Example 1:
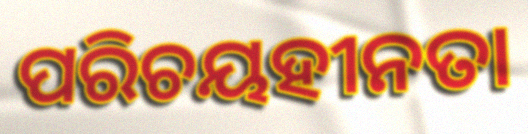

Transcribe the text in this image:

ପରିଚୟହୀନତା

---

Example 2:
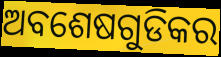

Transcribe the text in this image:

ଅବଶେଷଗୁଡିକର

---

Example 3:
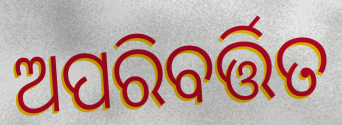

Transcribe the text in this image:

ଅପରିବର୍ତ୍ତିତ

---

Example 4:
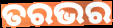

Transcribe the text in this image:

ତରଭର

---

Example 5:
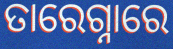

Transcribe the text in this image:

ତାରେଗ୍ନାରେ